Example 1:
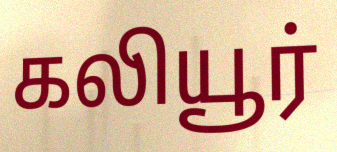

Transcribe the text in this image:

கலியூர்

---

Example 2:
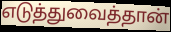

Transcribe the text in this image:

எடுத்துவைத்தான்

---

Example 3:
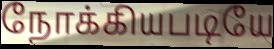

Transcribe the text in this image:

நோக்கியபடியே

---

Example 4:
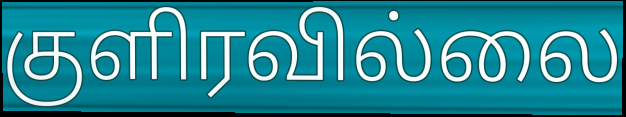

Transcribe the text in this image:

குளிரவில்லை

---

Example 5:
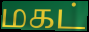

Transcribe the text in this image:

மகட்